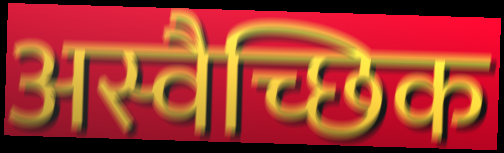
अस्वैच्छिक